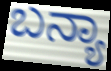
ಬನ್ಯಾ